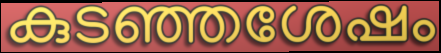
കുടഞ്ഞശേഷം